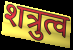
शत्रुत्व